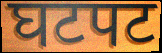
घटपट